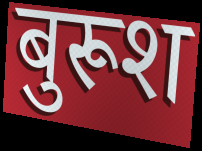
बुरूश